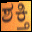
ಶಕ್ತಿ